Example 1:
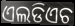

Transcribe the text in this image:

ଏଲଡିଏଚ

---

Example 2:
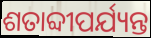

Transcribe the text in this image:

ଶତାବ୍ଦୀପର୍ଯ୍ୟନ୍ତ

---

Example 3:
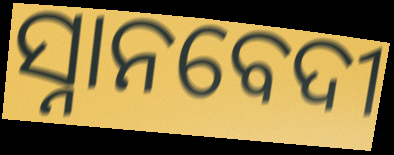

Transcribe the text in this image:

ସ୍ନାନବେଦୀ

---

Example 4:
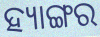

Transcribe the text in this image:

ହ୍ୟାଙ୍ଗର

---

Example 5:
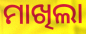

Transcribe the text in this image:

ମାଖିଲା